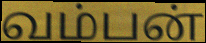
வம்பன்